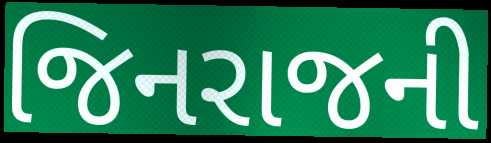
જિનરાજની